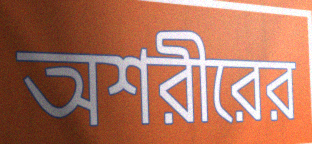
অশরীরের